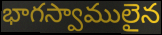
భాగస్వాములైన